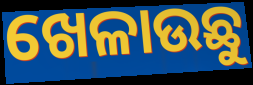
ଖେଳାଉଛୁ